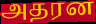
அதரன